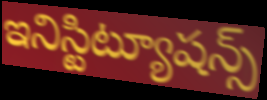
ఇనిస్టిట్యూషన్స్